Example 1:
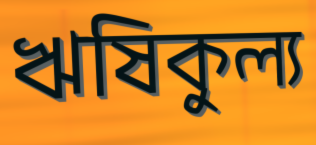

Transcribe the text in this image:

ঋষিকুল্য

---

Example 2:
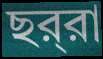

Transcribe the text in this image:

ছর্‌রা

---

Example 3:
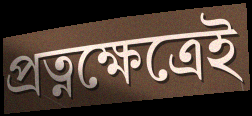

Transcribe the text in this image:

প্রত্নক্ষেত্রেই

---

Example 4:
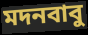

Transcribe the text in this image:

মদনবাবু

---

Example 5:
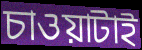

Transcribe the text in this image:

চাওয়াটাই